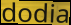
dodia